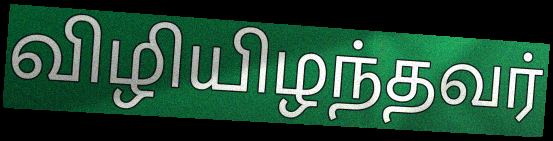
விழியிழந்தவர்